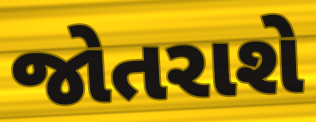
જોતરાશે